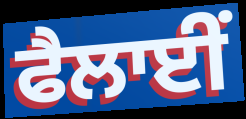
ਫੈਲਾਈਂ